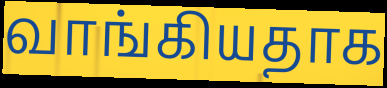
வாங்கியதாக